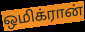
ஒமிக்ரான்